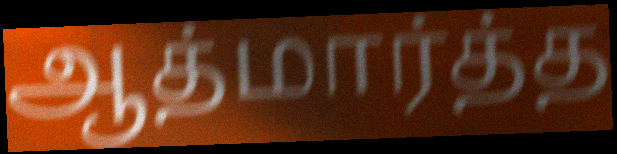
ஆத்மார்த்த